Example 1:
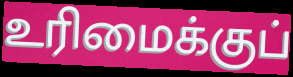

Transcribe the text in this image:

உரிமைக்குப்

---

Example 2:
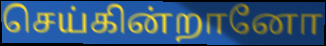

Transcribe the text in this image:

செய்கின்றானோ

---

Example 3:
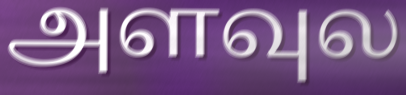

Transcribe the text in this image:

அளவுல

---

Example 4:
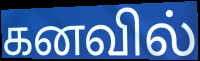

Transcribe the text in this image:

கனவில்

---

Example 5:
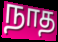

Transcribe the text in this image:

நாத